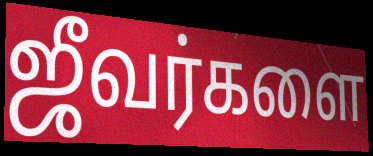
ஜீவர்களை